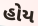
હોય